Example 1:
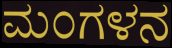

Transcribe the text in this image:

ಮಂಗಳನ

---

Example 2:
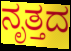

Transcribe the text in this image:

ನೃತ್ತದ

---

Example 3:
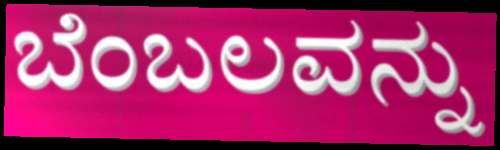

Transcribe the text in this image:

ಬೆಂಬಲವನ್ನು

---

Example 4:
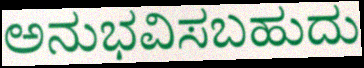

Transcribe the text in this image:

ಅನುಭವಿಸಬಹುದು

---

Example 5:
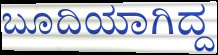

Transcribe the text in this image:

ಬೂದಿಯಾಗಿದ್ದ